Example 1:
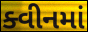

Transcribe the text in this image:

ક્વીનમાં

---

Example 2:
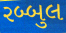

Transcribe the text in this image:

રબ્બુલ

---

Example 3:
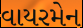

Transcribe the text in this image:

વાયરમેન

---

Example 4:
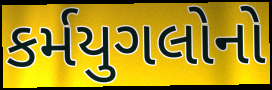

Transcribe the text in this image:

કર્મયુગલોનો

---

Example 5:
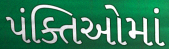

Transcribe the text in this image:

પંક્તિઓમાં